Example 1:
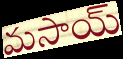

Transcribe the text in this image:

మసాయ్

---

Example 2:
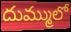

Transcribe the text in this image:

దుమ్ములో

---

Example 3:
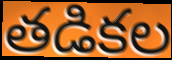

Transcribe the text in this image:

తడికల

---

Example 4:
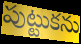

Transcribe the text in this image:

పుట్టుకను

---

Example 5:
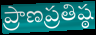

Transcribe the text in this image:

ప్రాణప్రతిష్ఠ